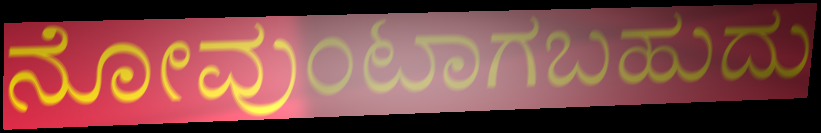
ನೋವುಂಟಾಗಬಹುದು